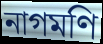
নাগমণি